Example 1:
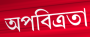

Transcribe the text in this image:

অপবিত্রতা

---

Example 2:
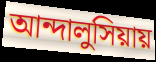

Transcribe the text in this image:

আন্দালুসিয়ায়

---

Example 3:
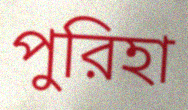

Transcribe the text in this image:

পুরিহা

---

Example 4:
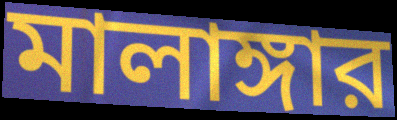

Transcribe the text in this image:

মালাঙ্গার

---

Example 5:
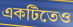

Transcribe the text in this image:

একটিতেও